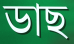
ডাছ